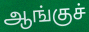
ஆங்குச்